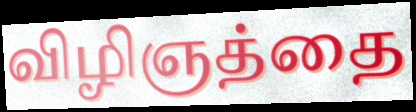
விழிஞத்தை